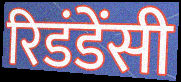
रिडंडेंसी